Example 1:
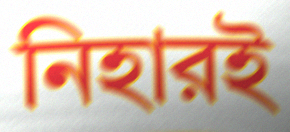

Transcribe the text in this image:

নিহারই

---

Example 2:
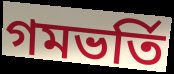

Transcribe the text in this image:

গমভর্তি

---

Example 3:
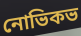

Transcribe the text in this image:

নোভিকভ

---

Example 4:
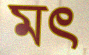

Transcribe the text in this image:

মৎ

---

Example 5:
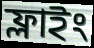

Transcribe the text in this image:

ফ্লাইং